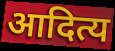
आदित्य